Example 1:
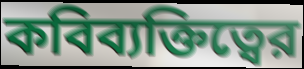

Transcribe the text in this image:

কবিব্যক্তিত্বের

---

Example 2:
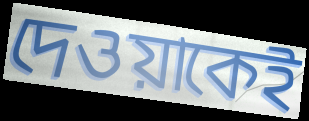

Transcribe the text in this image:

দেওয়াকেই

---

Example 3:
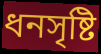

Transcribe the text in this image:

ধনসৃষ্টি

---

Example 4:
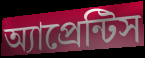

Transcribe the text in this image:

অ্যাপ্রেন্টিস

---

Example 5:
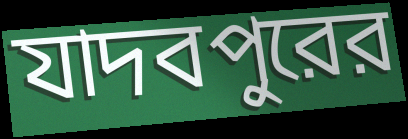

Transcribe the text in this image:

যাদবপুরের